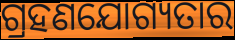
ଗ୍ରହଣଯୋଗ୍ୟତାର